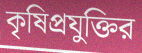
কৃষিপ্রযুক্তির